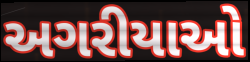
અગરીયાઓ